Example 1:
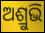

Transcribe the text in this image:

ଅଶ୍ରୁଭି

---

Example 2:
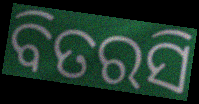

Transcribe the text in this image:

ବିତରସି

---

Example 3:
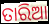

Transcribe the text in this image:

ତାରିଆ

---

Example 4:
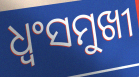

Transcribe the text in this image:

ଧ୍ୱଂସମୁଖୀ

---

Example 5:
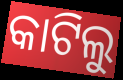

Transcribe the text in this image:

କାଟିଲୁ